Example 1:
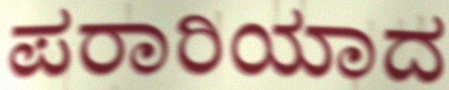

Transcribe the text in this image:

ಪರಾರಿಯಾದ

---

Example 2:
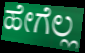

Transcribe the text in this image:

ಹೇಗೆಲ್ಲ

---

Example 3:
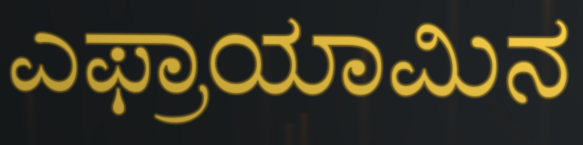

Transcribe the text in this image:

ಎಫ್ರಾಯಾಮಿನ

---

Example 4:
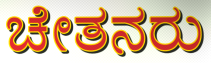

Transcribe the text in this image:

ಚೇತನರು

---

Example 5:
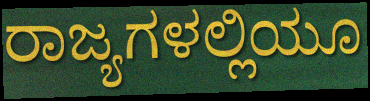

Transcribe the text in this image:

ರಾಜ್ಯಗಳಲ್ಲಿಯೂ